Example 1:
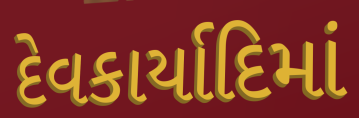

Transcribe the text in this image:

દેવકાર્યાદિમાં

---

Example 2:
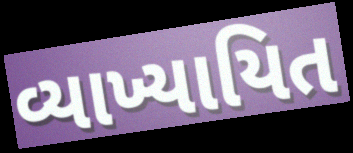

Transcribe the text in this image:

વ્યાખ્યાયિત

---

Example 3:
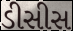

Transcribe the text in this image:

ડીસીસ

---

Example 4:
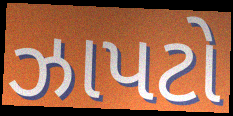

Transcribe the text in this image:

ઝાપટો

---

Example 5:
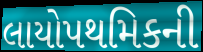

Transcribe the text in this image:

લાયોપથમિકની